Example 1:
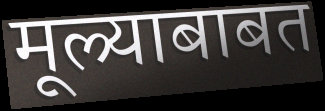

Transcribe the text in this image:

मूल्याबाबत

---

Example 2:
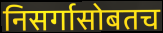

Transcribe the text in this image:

निसर्गासोबतच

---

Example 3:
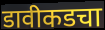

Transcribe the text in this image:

डावीकडचा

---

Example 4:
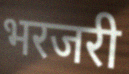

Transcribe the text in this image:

भरजरी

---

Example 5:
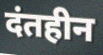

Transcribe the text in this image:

दंतहीन